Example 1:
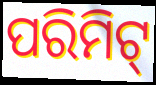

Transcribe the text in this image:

ପରିମିଟ୍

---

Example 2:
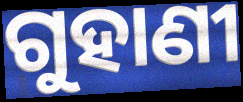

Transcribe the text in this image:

ଗୁହାଣୀ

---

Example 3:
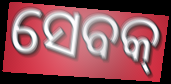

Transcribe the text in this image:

ସେବକ୍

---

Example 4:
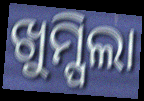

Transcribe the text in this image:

ଖୁମ୍ପିଲା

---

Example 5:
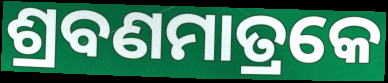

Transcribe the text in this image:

ଶ୍ରବଣମାତ୍ରକେ